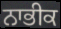
ਨਾਭੀਕ